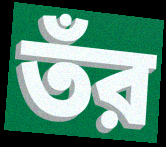
তঁর